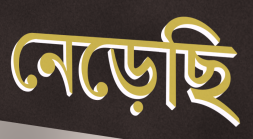
নেড়েছি